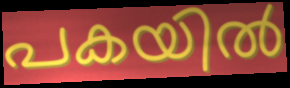
പകയിൽ